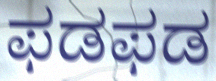
ಫಡಫಡ